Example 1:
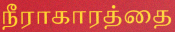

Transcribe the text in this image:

நீராகாரத்தை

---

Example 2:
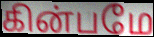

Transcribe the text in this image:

கின்பமே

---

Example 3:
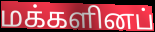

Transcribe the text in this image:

மக்களினப்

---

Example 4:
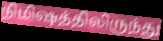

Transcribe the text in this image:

நிமிஷத்திலிருந்து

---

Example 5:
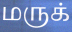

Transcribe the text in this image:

மருக்